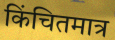
किंचितमात्र